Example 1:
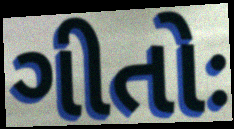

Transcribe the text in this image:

ગીતોઃ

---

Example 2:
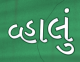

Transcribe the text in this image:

વ્હાલું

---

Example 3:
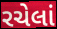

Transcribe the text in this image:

રચેલાં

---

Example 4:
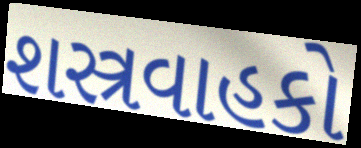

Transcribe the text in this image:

શસ્ત્રવાહકો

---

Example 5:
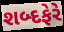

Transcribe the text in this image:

શબ્દફેરે